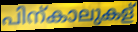
പിന്കാലുകള്